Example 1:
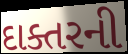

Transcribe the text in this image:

દાક્તરની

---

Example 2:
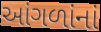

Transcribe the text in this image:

આંગળાંનાં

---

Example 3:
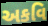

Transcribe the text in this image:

અકવિ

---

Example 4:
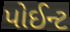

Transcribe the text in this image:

પોઈન્ટ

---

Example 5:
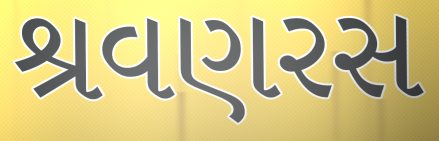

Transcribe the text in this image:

શ્રવણરસ